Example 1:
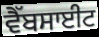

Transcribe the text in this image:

ਵੈੱਬਸਾਈਟ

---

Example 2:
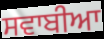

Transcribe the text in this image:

ਸਵਾਬੀਆ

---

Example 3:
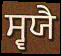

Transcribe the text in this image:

ਸ੍ਵਯੈ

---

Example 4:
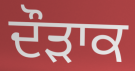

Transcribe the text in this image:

ਦੌੜਾਕ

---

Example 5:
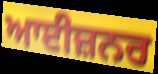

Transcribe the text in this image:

ਆਈਜ਼ਨਰ